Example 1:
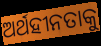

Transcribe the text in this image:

ଅର୍ଥହୀନତାକୁ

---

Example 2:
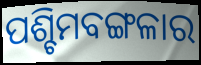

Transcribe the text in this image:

ପଶ୍ଚିମବଙ୍ଗଳାର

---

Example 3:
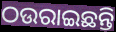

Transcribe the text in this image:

ଠଉରାଇଛନ୍ତି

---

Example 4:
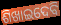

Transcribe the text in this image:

ଶିଖାଇଦେବି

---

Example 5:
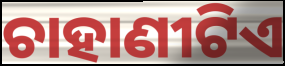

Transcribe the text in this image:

ଚାହାଣୀଟିଏ